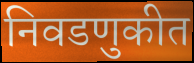
निवडणुकीत